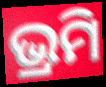
ଭ୍ରମି